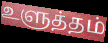
உளுத்தம்